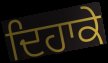
ਦਿਹਾਕੇ